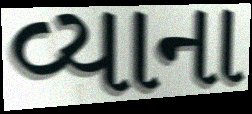
વ્યાના